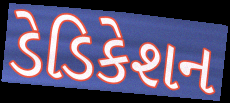
ડેડિકેશન